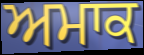
ਅਮਾਕ